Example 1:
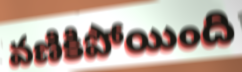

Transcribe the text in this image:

వణికిపోయింది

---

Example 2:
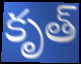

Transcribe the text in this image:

కృత్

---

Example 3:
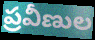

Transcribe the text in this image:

ప్రవీణుల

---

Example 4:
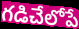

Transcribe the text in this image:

గడిచేలోపే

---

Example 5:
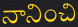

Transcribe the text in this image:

నానించి